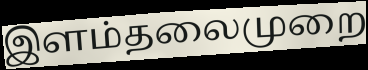
இளம்தலைமுறை